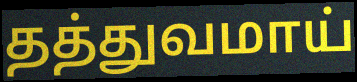
தத்துவமாய்